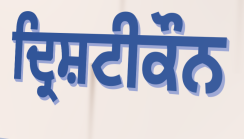
ਦ੍ਰਿਸ਼ਟੀਕੌਨ